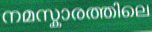
നമസ്കാരത്തിലെ